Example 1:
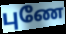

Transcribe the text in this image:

புணே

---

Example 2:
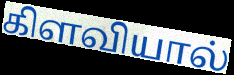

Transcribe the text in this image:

கிளவியால்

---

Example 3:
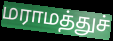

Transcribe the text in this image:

மராமத்துச்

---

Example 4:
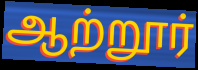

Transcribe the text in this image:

ஆற்றூர்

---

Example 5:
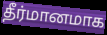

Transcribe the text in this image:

தீர்மானமாக